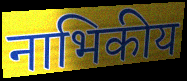
नाभिकीय